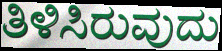
ತಿಳಿಸಿರುವುದು